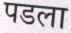
पडला